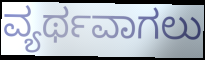
ವ್ಯರ್ಥವಾಗಲು